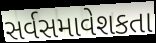
સર્વસમાવેશકતા